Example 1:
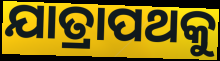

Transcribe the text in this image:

ଯାତ୍ରାପଥକୁ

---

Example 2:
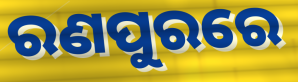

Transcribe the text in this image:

ରଣପୁରରେ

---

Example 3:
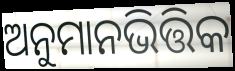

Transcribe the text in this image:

ଅନୁମାନଭିତ୍ତିକ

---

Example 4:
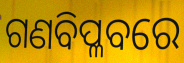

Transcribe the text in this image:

ଗଣବିପ୍ଳବରେ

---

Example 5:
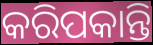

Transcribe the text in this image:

କରିପକାନ୍ତି